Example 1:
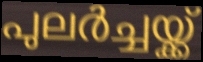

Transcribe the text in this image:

പുലർച്ചയ്ക്ക്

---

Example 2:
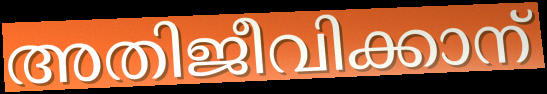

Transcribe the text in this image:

അതിജീവിക്കാന്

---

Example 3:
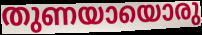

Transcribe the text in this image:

തുണയായൊരു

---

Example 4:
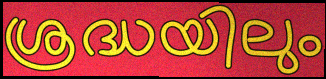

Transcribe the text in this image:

ശ്രദ്ധയിലും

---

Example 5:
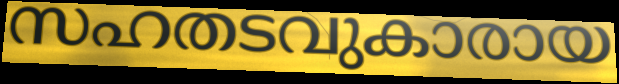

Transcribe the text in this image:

സഹതടവുകാരായ